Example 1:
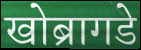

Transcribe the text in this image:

खोब्रागडे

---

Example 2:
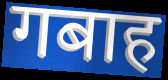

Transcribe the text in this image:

गबाह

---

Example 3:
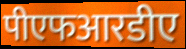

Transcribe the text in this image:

पीएफआरडीए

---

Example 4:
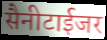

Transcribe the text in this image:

सैनीटाईजर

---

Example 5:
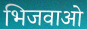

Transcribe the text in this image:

भिजवाओ